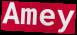
Amey